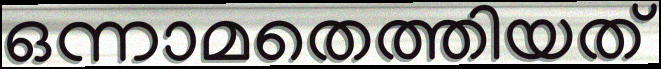
ഒന്നാമതെത്തിയത്